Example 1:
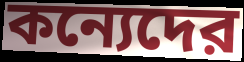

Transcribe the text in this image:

কন্যেদের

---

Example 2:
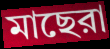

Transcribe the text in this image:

মাছেরা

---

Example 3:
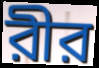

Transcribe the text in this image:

রীর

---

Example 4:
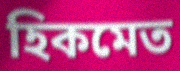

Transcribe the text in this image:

হিকমেত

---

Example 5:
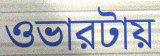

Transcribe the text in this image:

ওভারটায়